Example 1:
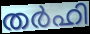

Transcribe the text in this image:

തർഹി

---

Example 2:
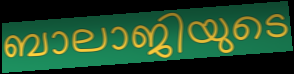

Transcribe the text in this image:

ബാലാജിയുടെ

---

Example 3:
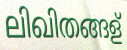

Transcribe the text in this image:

ലിഖിതങ്ങള്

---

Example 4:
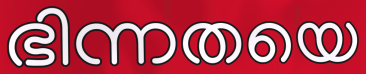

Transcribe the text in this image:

ഭിന്നതയെ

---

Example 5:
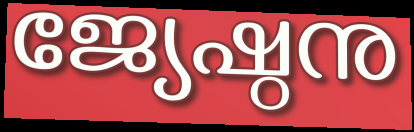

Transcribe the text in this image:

ജ്യേഷ്ഠനു